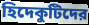
হিদেকুটিদের